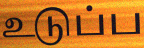
உடுப்ப